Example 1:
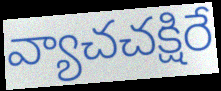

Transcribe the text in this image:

వ్యాచచక్షిరే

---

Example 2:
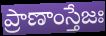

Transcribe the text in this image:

ప్రాణాంస్తేజః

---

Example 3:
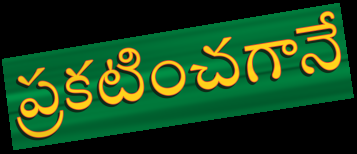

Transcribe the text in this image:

ప్రకటించగానే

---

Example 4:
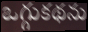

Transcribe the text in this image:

ఒగ్గుకథను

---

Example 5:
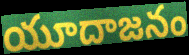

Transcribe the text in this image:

యూదాజనం